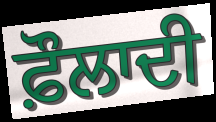
ਫ਼ੌਲਾਦੀ